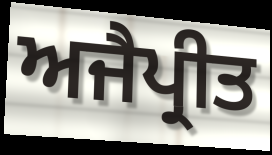
ਅਜੈਪ੍ਰੀਤ